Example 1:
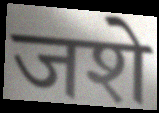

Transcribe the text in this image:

जशे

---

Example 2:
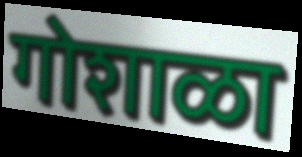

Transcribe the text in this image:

गोशाळा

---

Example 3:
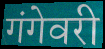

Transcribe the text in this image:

गंगेवरी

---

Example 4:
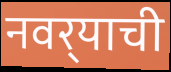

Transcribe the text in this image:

नवर्‍याची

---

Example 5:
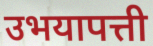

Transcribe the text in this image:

उभयापत्ती